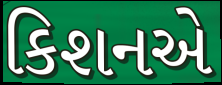
કિશનએ